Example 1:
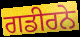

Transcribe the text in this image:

ਗਡੀਰਨੇ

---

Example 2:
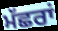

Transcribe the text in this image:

ਮੱਛਰਾਂ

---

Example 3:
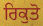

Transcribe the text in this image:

ਰਿਕੁਤੋ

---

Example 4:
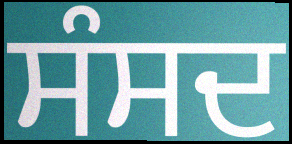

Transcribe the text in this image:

ਸੰਸਦ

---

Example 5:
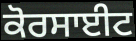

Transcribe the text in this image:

ਕੋਰਸਾਈਟ